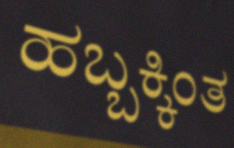
ಹಬ್ಬಕ್ಕಿಂತ